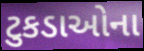
ટુકડાઓના